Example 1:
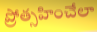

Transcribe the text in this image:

ప్రోత్సహించేలా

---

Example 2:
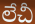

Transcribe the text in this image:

లేచీ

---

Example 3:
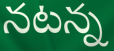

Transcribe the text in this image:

నటన్న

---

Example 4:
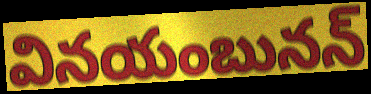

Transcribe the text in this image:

వినయంబునన్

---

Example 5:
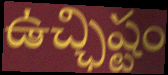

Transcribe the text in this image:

ఉచ్ఛిష్టం